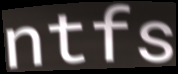
ntfs